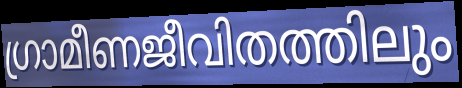
ഗ്രാമീണജീവിതത്തിലും